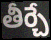
తీర్చే